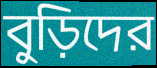
বুড়িদের